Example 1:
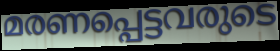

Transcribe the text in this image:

മരണപ്പെട്ടവരുടെ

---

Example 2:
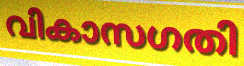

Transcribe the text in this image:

വികാസഗതി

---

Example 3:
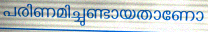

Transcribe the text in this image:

പരിണമിച്ചുണ്ടായതാണോ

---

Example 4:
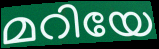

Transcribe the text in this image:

മറിയേ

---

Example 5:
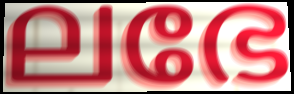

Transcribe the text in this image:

ലഭേ